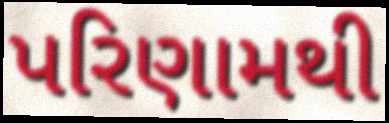
પરિણામથી